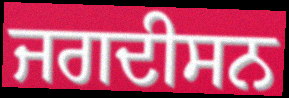
ਜਗਦੀਸਨ